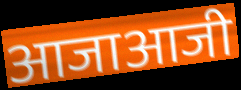
आजाआजी